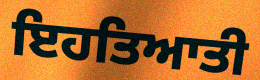
ਇਹਤਿਆਤੀ